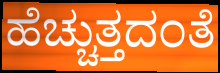
ಹೆಚ್ಚುತ್ತದಂತೆ